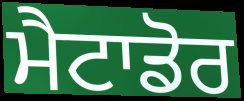
ਮੈਟਾਡੋਰ